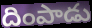
దింపాడు